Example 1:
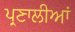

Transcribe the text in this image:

ਪ੍ਰਣਾਲੀਆਂ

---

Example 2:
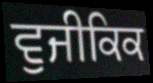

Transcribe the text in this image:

ਵੁਜੀਕਿਕ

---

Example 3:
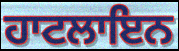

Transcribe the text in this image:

ਹਾਟਲਾਇਨ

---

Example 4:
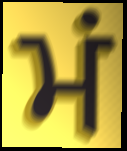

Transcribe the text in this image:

ਮਂ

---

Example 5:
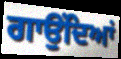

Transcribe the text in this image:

ਗਾਉਂਦਿਆਂ